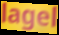
lagel